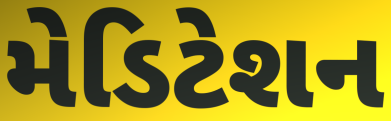
મેડિટેશન